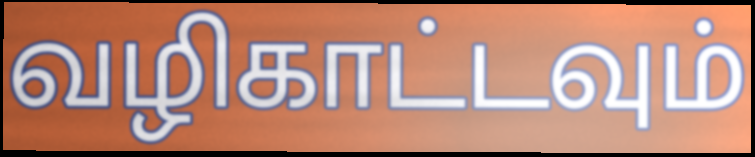
வழிகாட்டவும்